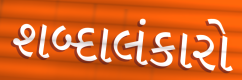
શબ્દાલંકારો